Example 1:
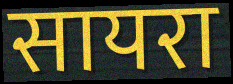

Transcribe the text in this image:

सायरा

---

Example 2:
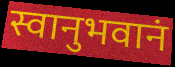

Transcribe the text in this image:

स्वानुभवानं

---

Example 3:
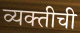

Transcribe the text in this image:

व्यक्तीची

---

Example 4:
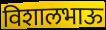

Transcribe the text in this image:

विशालभाऊ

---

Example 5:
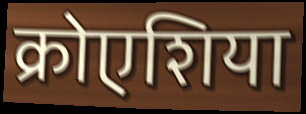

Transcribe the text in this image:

क्रोएशिया